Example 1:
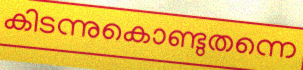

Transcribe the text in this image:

കിടന്നുകൊണ്ടുതന്നെ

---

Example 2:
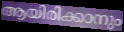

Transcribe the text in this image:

ആയിരിക്കാനും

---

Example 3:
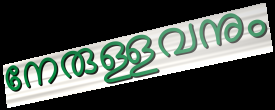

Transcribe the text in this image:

നേരുള്ളവനും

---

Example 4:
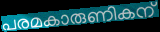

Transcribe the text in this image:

പരമകാരുണികന്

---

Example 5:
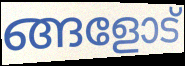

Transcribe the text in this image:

ങ്ങളോട്